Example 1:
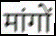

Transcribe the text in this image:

मांगों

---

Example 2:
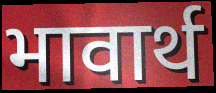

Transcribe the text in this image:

भावार्थ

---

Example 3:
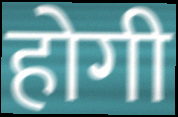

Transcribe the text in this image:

होगी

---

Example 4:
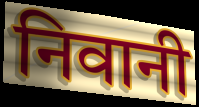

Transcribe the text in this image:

निवानी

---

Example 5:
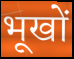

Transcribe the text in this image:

भूखों